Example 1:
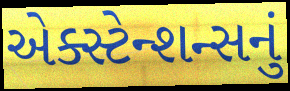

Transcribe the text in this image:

એક્સ્ટેન્શન્સનું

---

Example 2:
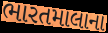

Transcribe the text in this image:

ભારતમાલાના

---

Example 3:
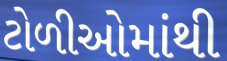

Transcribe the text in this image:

ટોળીઓમાંથી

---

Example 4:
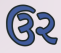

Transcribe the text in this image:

ઉર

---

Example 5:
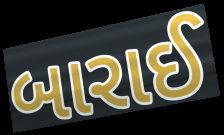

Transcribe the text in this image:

બારાઈ